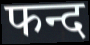
फन्द